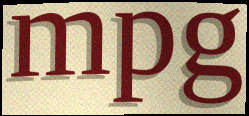
mpg